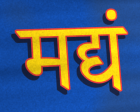
मद्यं